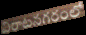
విరాటనగరంలో